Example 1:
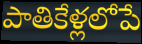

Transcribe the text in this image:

పాతికేళ్లలోపే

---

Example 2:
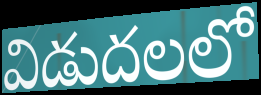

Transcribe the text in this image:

విడుదలలో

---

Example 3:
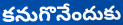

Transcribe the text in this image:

కనుగొనేందుకు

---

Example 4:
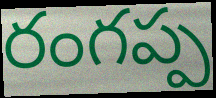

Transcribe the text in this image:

రంగప్ప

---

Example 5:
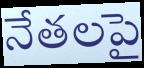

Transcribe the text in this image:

నేతలపై